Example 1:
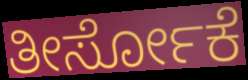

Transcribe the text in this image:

ತೀರ್ಸೋಕೆ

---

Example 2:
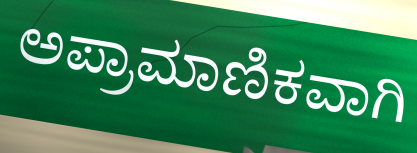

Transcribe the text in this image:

ಅಪ್ರಾಮಾಣಿಕವಾಗಿ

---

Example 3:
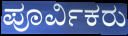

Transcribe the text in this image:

ಪೂರ್ವಿಕರು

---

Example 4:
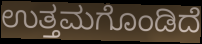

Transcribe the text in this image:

ಉತ್ತಮಗೊಂಡಿದೆ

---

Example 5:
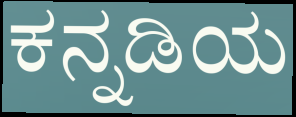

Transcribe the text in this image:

ಕನ್ನಡಿಯ